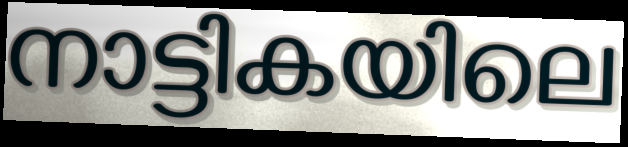
നാട്ടികയിലെ